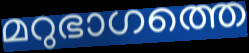
മറുഭാഗത്തെ